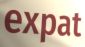
expat